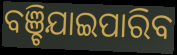
ବଞ୍ଚିଯାଇପାରିବ